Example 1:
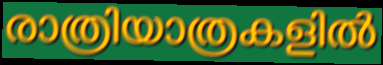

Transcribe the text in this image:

രാത്രിയാത്രകളിൽ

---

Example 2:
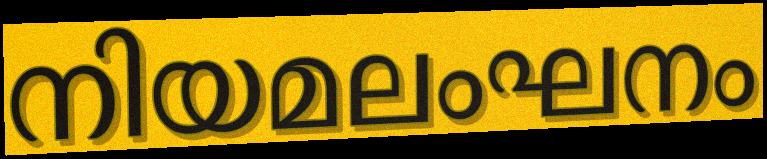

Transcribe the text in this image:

നിയമലംഘനം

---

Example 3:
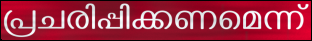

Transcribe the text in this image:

പ്രചരിപ്പിക്കണമെന്ന്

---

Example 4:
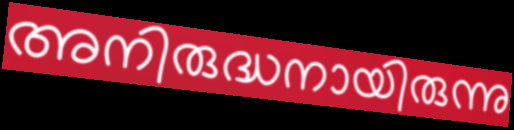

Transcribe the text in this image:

അനിരുദ്ധനായിരുന്നു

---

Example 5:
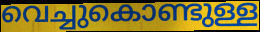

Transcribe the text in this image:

വെച്ചുകൊണ്ടുള്ള